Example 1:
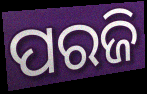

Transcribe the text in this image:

ପରଜି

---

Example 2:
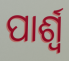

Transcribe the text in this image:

ପାର୍ଶ୍ବ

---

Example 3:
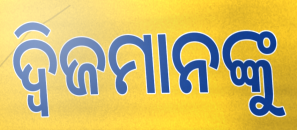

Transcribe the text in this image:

ଦ୍ୱିଜମାନଙ୍କୁ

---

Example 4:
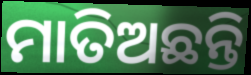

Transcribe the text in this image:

ମାତିଅଛନ୍ତି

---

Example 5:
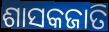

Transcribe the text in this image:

ଶାସକଜାତି